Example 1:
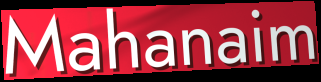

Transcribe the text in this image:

Mahanaim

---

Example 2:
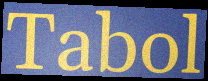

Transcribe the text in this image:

Tabol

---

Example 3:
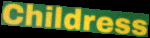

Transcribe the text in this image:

Childress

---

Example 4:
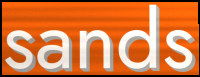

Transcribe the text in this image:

sands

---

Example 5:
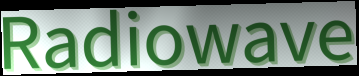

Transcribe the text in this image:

Radiowave